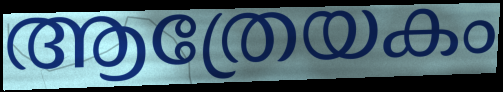
ആത്രേയകം